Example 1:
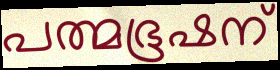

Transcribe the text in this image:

പത്മഭൂഷന്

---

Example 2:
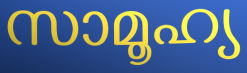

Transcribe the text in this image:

സാമൂഹ്യ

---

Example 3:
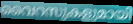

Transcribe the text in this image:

വൈറസുകളുമായി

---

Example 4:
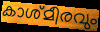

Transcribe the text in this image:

കാശ്മീരവും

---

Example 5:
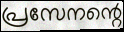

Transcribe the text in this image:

പ്രസേനന്റെ